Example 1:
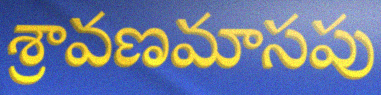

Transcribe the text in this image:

శ్రావణమాసపు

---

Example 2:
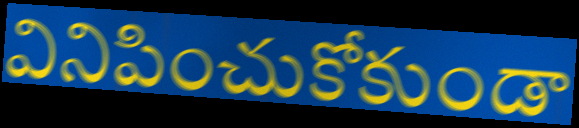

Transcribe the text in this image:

వినిపించుకోకుండా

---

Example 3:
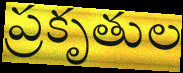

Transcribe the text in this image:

ప్రకృతుల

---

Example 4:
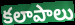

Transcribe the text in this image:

కలాపాలు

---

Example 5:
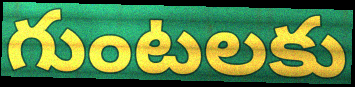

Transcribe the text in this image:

గుంటలకు